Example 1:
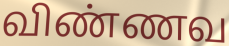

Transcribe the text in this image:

விண்ணவ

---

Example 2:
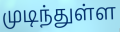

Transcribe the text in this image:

முடிந்துள்ள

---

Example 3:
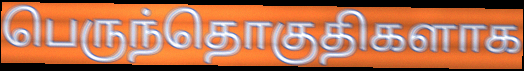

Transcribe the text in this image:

பெருந்தொகுதிகளாக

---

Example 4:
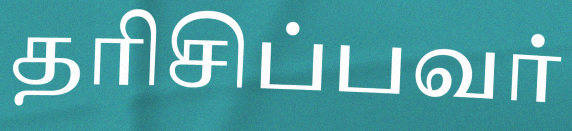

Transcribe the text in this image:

தரிசிப்பவர்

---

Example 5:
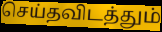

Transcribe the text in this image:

செய்தவிடத்தும்